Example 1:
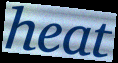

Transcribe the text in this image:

heat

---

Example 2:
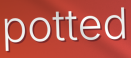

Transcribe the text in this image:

potted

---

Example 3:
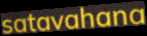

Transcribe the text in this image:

satavahana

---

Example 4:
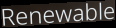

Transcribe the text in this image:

Renewable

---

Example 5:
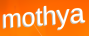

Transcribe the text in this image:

mothya